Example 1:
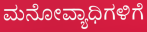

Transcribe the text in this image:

ಮನೋವ್ಯಾಧಿಗಳಿಗೆ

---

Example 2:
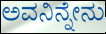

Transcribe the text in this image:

ಅವನಿನ್ನೇನು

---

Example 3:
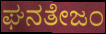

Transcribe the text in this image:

ಘನತೇಜಂ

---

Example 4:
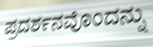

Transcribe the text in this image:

ಪ್ರದರ್ಶನವೊಂದನ್ನು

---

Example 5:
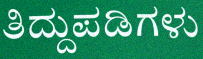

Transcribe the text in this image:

ತಿದ್ದುಪಡಿಗಳು